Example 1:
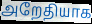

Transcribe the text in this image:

அறேதியாக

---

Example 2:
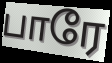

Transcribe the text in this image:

பாரே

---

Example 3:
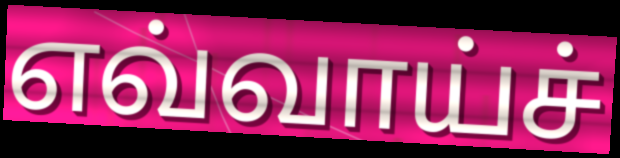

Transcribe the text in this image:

எவ்வாய்ச்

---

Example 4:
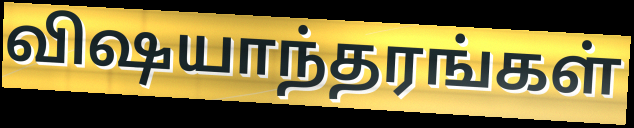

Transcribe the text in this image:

விஷயாந்தரங்கள்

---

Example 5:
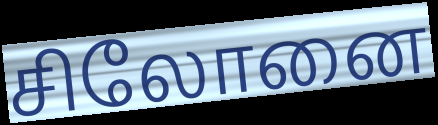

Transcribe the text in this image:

சிலோனை